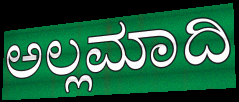
ಅಲ್ಲಮಾದಿ